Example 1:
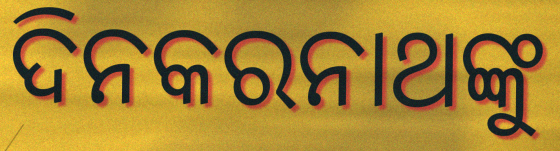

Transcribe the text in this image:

ଦିନକରନାଥଙ୍କୁ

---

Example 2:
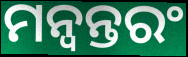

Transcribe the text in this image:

ମନ୍ବନ୍ତରଂ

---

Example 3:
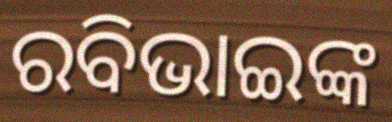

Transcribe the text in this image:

ରବିଭାଇଙ୍କ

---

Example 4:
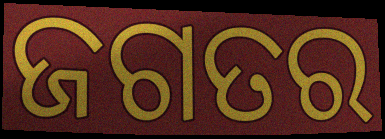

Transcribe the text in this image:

ଜଗତର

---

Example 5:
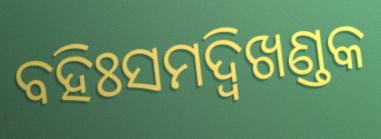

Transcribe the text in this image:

ବହିଃସମଦ୍ୱିଖଣ୍ଡକ